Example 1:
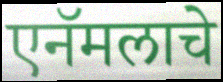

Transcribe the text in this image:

एनॅमलाचे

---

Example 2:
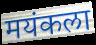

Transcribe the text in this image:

मयंकला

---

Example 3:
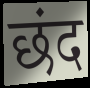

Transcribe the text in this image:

छंद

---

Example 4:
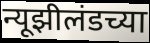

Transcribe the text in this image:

न्यूझीलंडच्या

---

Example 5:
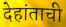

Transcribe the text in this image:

देहांताची